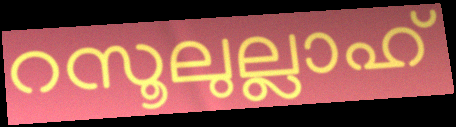
റസൂലുല്ലാഹ്